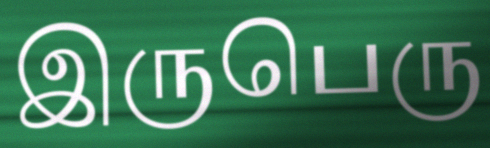
இருபெரு